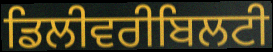
ਡਿਲੀਵਰੀਬਿਲਟੀ